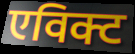
एविक्ट